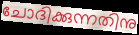
ചോദിക്കുന്നതിനു